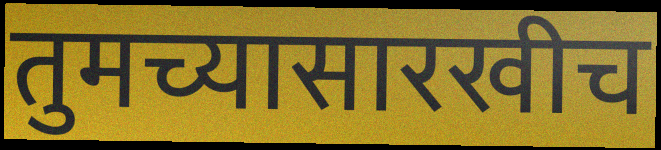
तुमच्यासारखीच